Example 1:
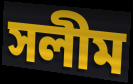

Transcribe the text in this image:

সলীম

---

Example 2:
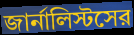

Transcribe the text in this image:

জার্নালিস্টসের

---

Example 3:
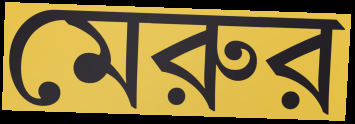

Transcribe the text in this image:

মেরুর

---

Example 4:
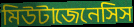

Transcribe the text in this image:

মিউটাজেনেসিস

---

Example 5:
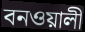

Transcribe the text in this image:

বনওয়ালী